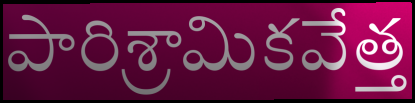
పారిశ్రామికవేత్త